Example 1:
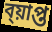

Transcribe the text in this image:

ব্য়াপ্ত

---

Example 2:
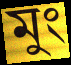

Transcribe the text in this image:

মুং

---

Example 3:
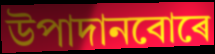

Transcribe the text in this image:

উপাদানবোৰে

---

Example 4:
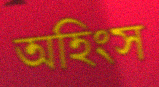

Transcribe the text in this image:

অহিংস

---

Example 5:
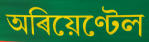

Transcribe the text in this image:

অৰিয়েণ্টেল